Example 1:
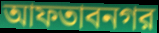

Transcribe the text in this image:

আফতাবনগর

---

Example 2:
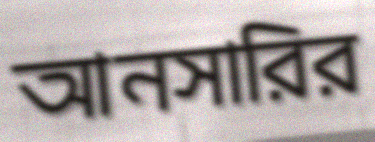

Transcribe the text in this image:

আনসারির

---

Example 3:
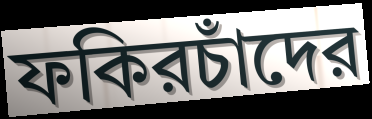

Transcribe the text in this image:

ফকিরচাঁদের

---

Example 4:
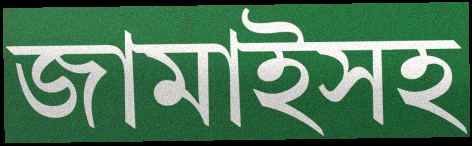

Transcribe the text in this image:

জামাইসহ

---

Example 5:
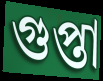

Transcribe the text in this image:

গুপ্তা